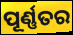
ପୂର୍ଣ୍ଣତର